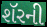
શૅરની